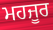
ਮਹਜੂਰ